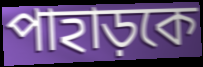
পাহাড়কে